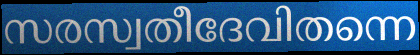
സരസ്വതീദേവിതന്നെ